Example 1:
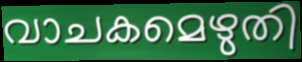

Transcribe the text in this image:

വാചകമെഴുതി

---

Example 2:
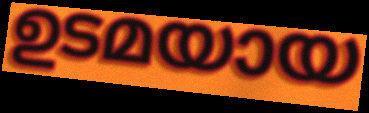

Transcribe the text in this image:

ഉടമയായ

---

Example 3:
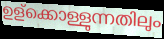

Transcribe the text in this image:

ഉള്ക്കൊള്ളുന്നതിലും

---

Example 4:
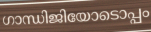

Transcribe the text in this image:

ഗാന്ധിജിയോടൊപ്പം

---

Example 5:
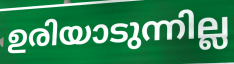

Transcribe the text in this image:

ഉരിയാടുന്നില്ല